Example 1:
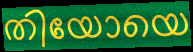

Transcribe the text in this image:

തിയോയെ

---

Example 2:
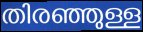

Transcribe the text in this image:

തിരഞ്ഞുള്ള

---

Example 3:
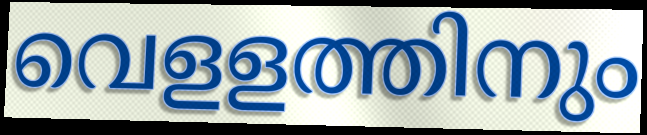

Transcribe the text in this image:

വെളളത്തിനും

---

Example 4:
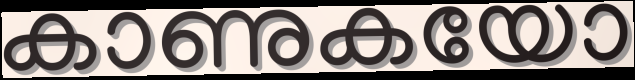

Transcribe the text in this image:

കാണുകയോ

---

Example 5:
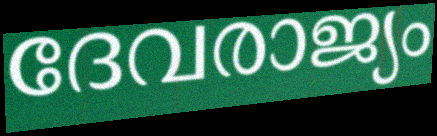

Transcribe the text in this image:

ദേവരാജ്യം